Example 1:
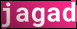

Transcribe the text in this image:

jagad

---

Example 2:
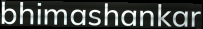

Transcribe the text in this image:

bhimashankar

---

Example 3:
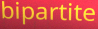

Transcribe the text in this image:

bipartite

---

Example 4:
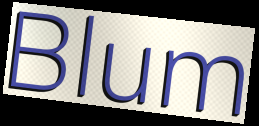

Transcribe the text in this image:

Blum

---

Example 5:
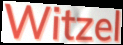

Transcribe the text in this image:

Witzel